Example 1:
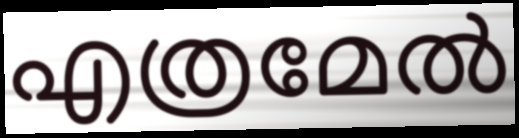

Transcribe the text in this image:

എത്രമേൽ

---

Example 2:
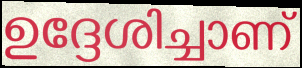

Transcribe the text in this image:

ഉദ്ദേശിച്ചാണ്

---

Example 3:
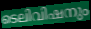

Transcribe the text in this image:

ടെലിവിഷനും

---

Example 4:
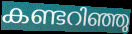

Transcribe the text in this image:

കണ്ടറിഞ്ഞു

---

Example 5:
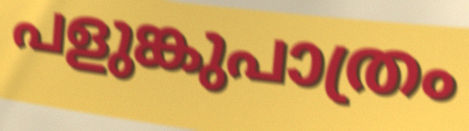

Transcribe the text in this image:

പളുങ്കുപാത്രം